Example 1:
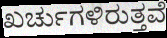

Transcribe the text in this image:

ಖರ್ಚುಗಳಿರುತ್ತವೆ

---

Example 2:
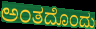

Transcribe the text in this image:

ಅಂತದೊಂದು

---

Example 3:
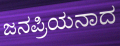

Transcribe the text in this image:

ಜನಪ್ರಿಯನಾದ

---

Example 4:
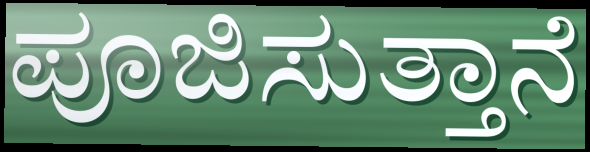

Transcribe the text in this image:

ಪೂಜಿಸುತ್ತಾನೆ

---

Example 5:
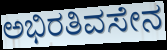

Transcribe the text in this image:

ಅಭಿರತಿವಸೇನ